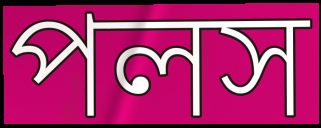
পলস